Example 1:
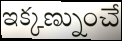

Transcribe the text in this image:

ఇక్కణ్నుంచే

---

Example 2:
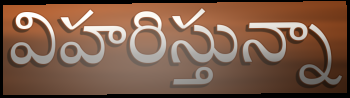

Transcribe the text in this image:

విహరిస్తున్నా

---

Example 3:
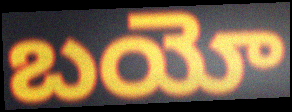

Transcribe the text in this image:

బయో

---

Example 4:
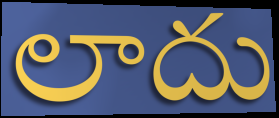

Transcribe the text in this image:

లాదు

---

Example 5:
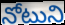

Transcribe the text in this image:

నోటుని